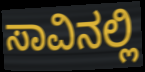
ಸಾವಿನಲ್ಲಿ